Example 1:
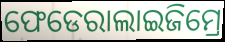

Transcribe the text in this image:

ଫେଡେରାଲାଇଜିମ୍ରେ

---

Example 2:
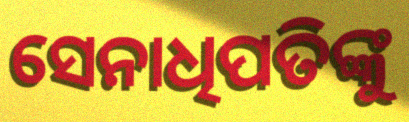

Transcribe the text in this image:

ସେନାଧିପତିଙ୍କୁ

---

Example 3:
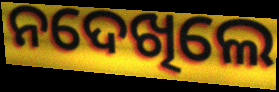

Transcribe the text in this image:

ନଦେଖିଲେ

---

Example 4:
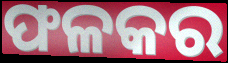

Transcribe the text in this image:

ଫଳକର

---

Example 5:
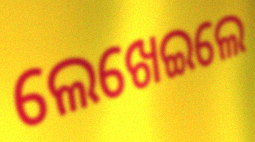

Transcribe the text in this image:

ଲେଖେଇଲେ